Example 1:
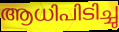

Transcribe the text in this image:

ആധിപിടിച്ചു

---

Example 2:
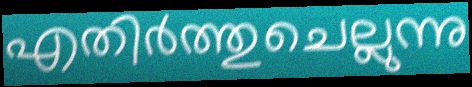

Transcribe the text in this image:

എതിർത്തുചെല്ലുന്നു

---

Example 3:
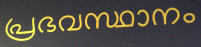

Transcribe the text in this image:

പ്രഭവസ്ഥാനം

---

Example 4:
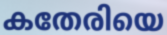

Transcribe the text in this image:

കതേരിയെ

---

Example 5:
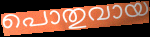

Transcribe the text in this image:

പൊതുവായ